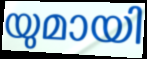
യുമായി